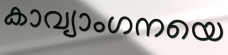
കാവ്യാംഗനയെ